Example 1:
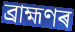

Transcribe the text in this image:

ব্ৰাহ্মণৰ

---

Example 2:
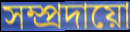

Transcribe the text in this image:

সম্প্ৰদায়ো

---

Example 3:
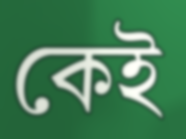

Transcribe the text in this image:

কেই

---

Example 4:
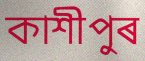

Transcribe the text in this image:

কাশীপুৰ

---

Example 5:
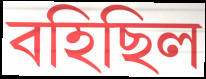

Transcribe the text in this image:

বহিছিল